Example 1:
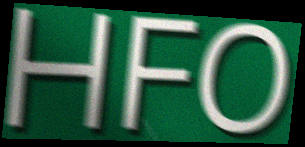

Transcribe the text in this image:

HFO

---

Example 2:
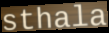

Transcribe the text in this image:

sthala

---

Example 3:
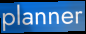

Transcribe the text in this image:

planner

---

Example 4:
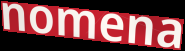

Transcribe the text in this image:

nomena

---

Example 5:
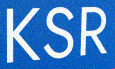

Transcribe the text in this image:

KSR